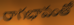
రాగభావంతో